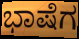
ಭಾಷೆಗ